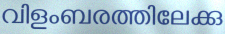
വിളംബരത്തിലേക്കു